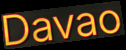
Davao